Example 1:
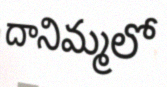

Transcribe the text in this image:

దానిమ్మలో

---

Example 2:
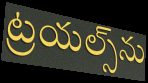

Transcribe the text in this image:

ట్రయల్స్‌ను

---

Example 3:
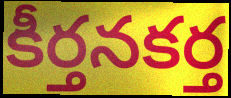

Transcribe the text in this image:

కీర్తనకర్త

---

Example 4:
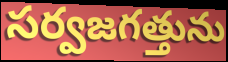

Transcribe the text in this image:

సర్వజగత్తును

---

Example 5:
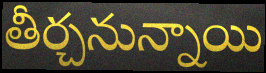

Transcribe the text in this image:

తీర్చనున్నాయి